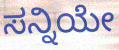
ಸನ್ನಿಯೇ